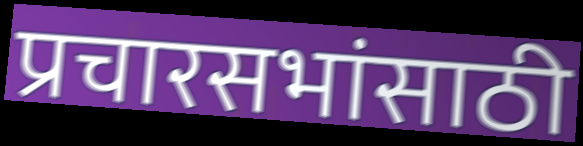
प्रचारसभांसाठी